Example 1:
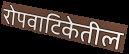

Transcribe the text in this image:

रोपवाटिकेतील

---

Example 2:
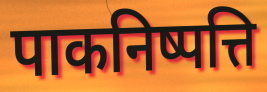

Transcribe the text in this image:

पाकनिष्पत्ति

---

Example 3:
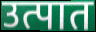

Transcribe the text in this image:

उत्पात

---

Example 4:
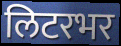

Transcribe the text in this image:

लिटरभर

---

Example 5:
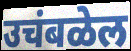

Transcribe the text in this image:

उचंबळेल